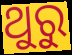
ଥୁରୁ